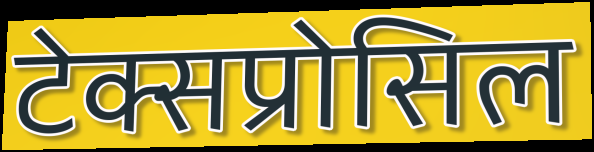
टेक्सप्रोसिल